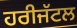
ਹਰੀਜੱਟਲ